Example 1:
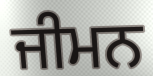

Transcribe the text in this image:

ਜੀਮਨ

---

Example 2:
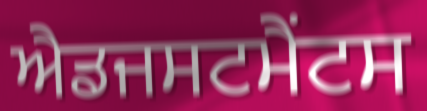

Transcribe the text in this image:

ਐਡਜਸਟਮੈਂਟਸ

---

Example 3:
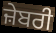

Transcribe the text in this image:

ਜ਼ੇਬਰੀ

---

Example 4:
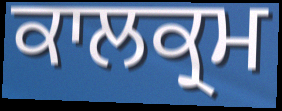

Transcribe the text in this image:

ਕਾਲਕ੍ਰਮ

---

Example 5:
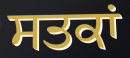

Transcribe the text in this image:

ਸਤਕਾਂ